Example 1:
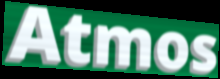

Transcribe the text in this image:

Atmos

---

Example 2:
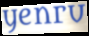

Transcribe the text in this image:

yenru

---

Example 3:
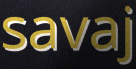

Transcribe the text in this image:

savaj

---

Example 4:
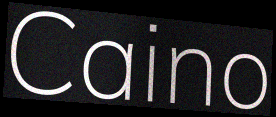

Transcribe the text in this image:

Caino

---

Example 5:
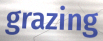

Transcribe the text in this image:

grazing